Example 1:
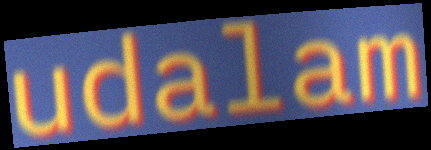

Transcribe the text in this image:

udalam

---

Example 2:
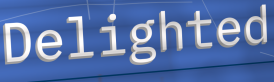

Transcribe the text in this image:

Delighted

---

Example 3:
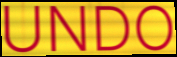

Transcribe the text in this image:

UNDO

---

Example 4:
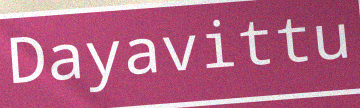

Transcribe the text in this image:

Dayavittu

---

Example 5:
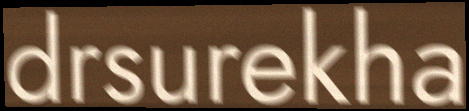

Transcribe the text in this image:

drsurekha